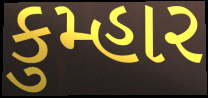
કુમ્હાર